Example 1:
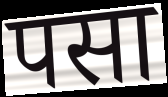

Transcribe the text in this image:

पसा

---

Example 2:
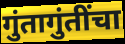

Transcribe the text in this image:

गुंतागुंतींचा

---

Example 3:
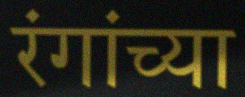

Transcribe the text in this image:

रंगांच्या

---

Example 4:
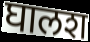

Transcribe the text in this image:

घालश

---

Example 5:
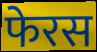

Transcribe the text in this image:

फेरस